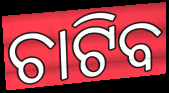
ଚାଟିବ